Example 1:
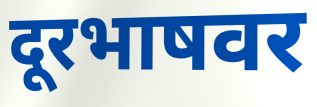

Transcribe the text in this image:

दूरभाषवर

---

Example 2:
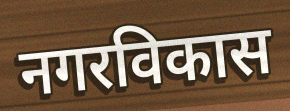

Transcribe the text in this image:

नगरविकास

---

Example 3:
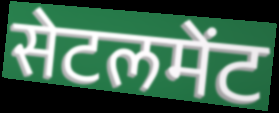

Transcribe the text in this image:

सेटलमेंट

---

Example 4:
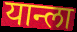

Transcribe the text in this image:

यान्ला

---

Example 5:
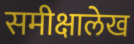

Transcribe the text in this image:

समीक्षालेख